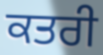
ਕਤਰੀ